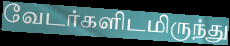
வேடர்களிடமிருந்து